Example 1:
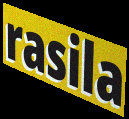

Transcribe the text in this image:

rasila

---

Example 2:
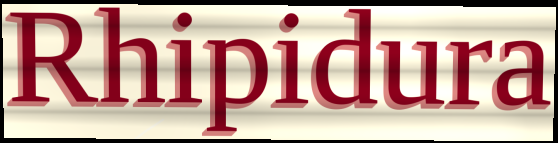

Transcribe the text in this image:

Rhipidura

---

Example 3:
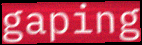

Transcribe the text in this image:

gaping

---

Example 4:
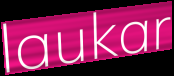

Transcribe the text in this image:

laukar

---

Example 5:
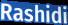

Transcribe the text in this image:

Rashidi